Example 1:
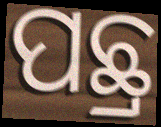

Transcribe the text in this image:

ପଛ୍ର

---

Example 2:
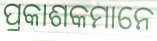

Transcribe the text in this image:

ପ୍ରକାଶକମାନେ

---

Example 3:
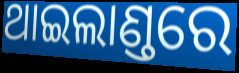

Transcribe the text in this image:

ଥାଇଲାଣ୍ଡରେ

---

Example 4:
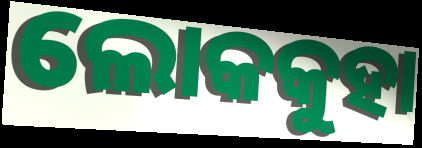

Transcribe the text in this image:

ଲୋକକୁହା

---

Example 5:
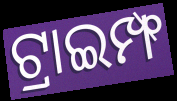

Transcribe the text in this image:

ଟ୍ରାଇମ୍ଫ